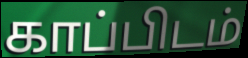
காப்பிடம்